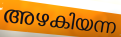
അഴകിയന്ന